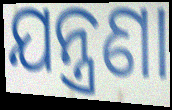
ଯନ୍ତ୍ରଣା